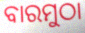
ବାରମୁଠା